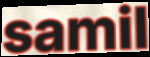
samil